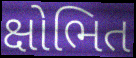
ક્ષોભિત